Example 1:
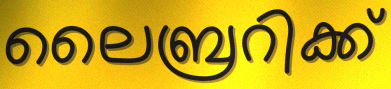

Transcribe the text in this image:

ലൈബ്രറിക്ക്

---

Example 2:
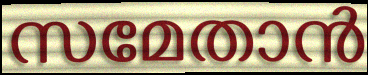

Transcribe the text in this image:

സമേതാൻ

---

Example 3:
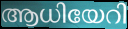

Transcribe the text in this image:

ആധിയേറി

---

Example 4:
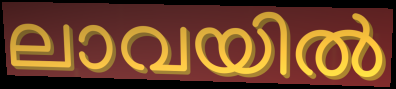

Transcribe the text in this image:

ലാവയിൽ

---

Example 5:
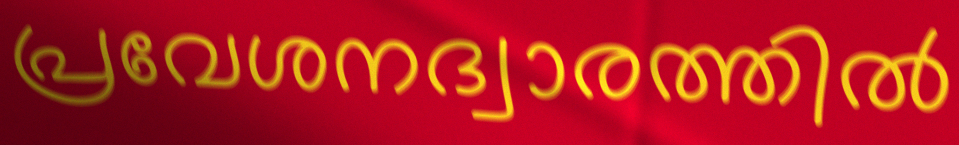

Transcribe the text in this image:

പ്രവേശനദ്വാരത്തിൽ